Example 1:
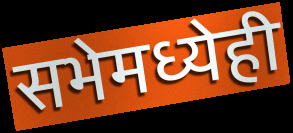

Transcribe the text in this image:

सभेमध्येही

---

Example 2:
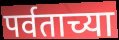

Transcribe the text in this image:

पर्वताच्या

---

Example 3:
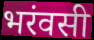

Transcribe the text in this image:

भरंवसी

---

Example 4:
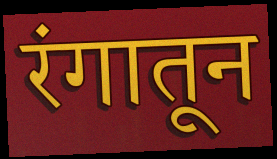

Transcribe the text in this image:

रंगातून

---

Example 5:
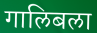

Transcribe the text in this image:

गालिबला